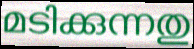
മടിക്കുന്നതു